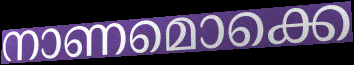
നാണമൊക്കെ